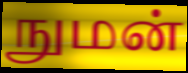
நுமன்